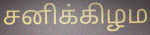
சனிக்கிழம